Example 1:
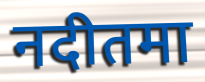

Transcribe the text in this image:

नदीतमा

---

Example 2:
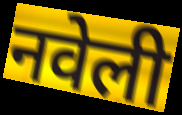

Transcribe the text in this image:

नवेली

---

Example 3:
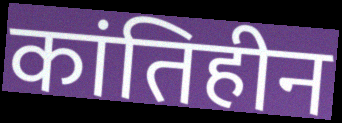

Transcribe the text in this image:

कांतिहीन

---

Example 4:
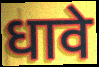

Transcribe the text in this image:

धावे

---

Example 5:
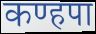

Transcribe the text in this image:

कण्हपा